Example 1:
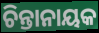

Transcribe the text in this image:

ଚିନ୍ତାନାୟକ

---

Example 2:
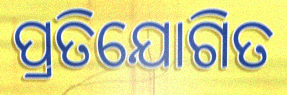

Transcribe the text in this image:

ପ୍ରତିଯୋଗିତ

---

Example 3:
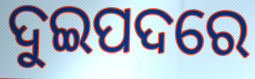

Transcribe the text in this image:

ଦୁଇପଦରେ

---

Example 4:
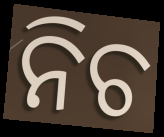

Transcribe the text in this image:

ନିଚ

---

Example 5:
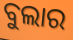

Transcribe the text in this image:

ବୁଲାର